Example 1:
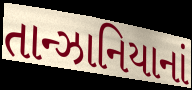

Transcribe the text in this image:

તાન્ઝાનિયાનાં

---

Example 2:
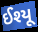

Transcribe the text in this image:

ઈશ્યૂ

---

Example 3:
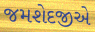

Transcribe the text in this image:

જમશેદજીએ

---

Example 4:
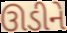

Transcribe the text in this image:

ઊડીને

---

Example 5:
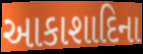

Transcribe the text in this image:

આકાશાદિના